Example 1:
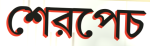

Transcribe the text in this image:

শেরপেচ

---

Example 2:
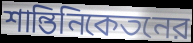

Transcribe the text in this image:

শান্তিনিকেতনের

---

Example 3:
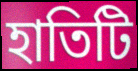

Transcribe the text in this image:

হাতিটি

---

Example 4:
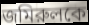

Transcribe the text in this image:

জমিরুলকে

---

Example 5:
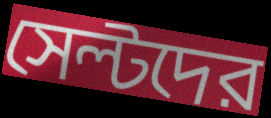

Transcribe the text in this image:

সেল্টদের